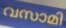
വസാമി